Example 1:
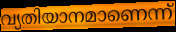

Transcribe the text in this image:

വ്യതിയാനമാണെന്ന്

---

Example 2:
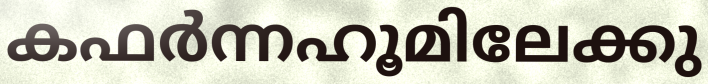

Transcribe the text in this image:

കഫർന്നഹൂമിലേക്കു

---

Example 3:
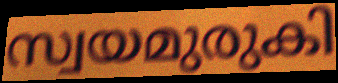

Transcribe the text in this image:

സ്വയമുരുകി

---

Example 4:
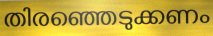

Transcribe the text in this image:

തിരഞ്ഞെടുക്കണം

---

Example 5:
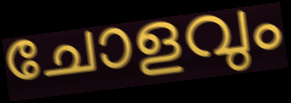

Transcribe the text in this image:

ചോളവും